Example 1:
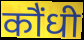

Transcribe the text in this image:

कौंधी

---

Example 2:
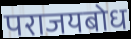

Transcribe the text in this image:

पराजयबोध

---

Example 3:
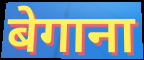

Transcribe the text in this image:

बेगाना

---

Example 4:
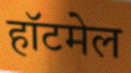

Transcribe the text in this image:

हॉटमेल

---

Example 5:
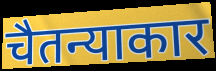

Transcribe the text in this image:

चैतन्याकार